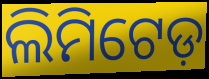
ଲିମିଟେଡ଼